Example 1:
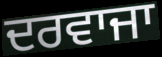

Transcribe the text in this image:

ਦਰਵਾਜਾ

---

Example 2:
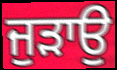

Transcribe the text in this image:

ਜੁੜਾਉ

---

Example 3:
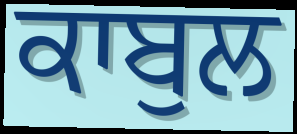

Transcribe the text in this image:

ਕਾਬੁਲ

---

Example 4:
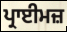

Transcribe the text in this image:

ਪ੍ਰਾਈਮਜ਼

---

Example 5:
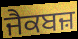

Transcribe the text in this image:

ਜੈਕਬਜ਼